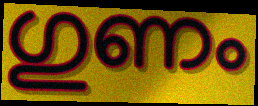
ഗുണം